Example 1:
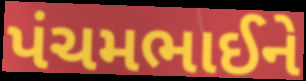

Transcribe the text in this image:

પંચમભાઈને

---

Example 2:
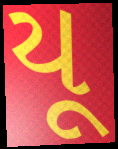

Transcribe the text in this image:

યૂ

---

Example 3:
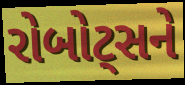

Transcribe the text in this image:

રોબોટ્સને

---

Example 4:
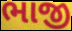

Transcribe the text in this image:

ભાજી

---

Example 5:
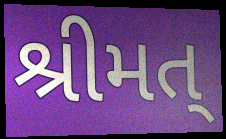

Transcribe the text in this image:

શ્રીમત્